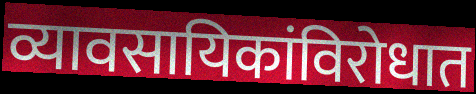
व्यावसायिकांविरोधात